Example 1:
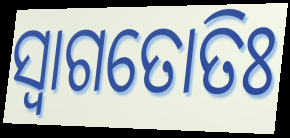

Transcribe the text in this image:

ସ୍ଵାଗତୋତିଃ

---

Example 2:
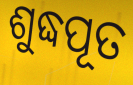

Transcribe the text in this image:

ଶୁଦ୍ଧପୂତ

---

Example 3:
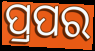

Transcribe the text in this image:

ପ୍ରପର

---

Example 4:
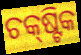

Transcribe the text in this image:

ଚକ୍‌ଷ୍ଟିକ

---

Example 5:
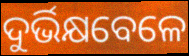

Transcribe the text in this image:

ଦୁର୍ଭିକ୍ଷବେଳେ